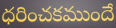
ధరించకముందే